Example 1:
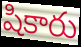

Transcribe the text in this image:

షికారు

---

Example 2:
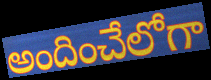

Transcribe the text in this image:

అందించేలోగా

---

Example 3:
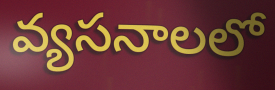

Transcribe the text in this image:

వ్యసనాలలో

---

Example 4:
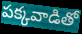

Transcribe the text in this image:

పక్కవాడితో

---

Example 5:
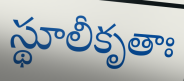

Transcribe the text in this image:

స్థూలీకృతాః